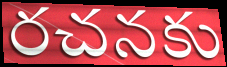
రచనకు